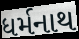
ધર્મનાથ